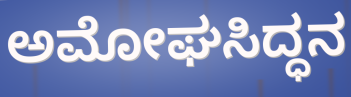
ಅಮೋಘಸಿದ್ಧನ